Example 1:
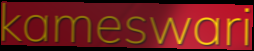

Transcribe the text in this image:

kameswari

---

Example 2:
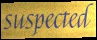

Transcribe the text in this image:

suspected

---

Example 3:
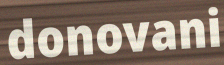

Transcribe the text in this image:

donovani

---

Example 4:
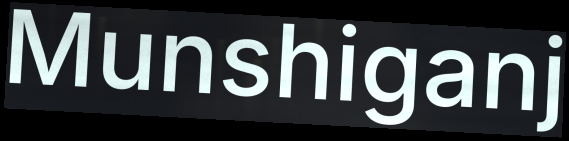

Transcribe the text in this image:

Munshiganj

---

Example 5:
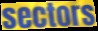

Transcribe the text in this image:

sectors